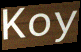
Koy